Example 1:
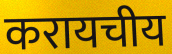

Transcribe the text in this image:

करायचीय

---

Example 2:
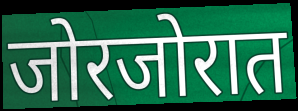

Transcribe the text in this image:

जोरजोरात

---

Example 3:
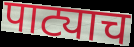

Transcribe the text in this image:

पाट्याच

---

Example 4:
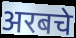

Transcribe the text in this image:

अरबचे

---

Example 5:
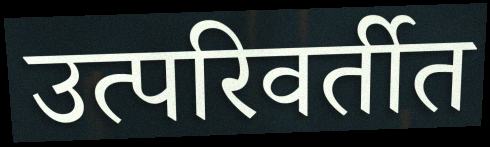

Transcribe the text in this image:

उत्परिवर्तीत